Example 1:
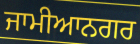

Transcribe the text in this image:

ਜਾਮੀਆਨਗਰ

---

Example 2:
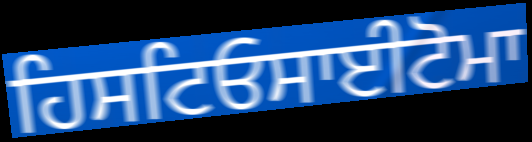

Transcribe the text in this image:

ਹਿਸਟਿਓਸਾਈਟੋਮਾ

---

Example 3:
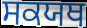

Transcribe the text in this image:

ਸਕਯਥ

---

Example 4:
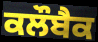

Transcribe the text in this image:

ਕਲੌਬੈਕ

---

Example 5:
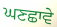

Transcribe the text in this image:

ਘਣਛਾਵੇ